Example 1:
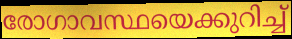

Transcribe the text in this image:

രോഗാവസ്ഥയെക്കുറിച്ച്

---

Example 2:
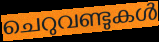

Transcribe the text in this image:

ചെറുവണ്ടുകൾ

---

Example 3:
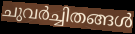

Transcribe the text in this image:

ചുവർച്ചിതങ്ങൾ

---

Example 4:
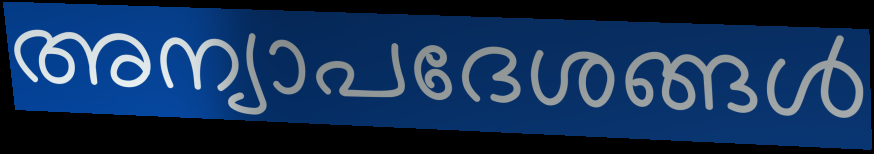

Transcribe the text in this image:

അന്യാപദേശങ്ങൾ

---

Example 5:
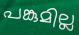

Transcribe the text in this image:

പങ്കുമില്ല